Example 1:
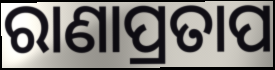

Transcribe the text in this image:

ରାଣାପ୍ରତାପ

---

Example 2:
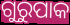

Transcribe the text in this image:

ଗୁରୁପାକ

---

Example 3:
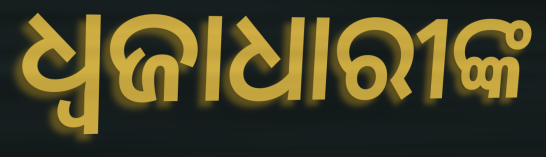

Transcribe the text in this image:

ଧ୍ୱଜାଧାରୀଙ୍କ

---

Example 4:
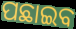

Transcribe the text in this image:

ପଛାଇବ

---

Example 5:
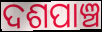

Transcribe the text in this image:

ଦଶପାଞ୍ଚ